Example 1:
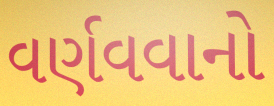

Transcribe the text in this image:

વર્ણવવાનો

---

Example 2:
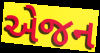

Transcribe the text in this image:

એજન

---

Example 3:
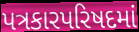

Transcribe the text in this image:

પત્રકારપરિષદમાં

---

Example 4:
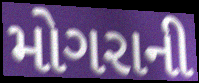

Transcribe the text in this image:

મોગરાની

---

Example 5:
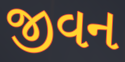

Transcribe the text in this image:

જીવન